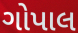
ગોપાલ